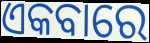
ଏକବାରେ